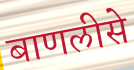
बाणलीसे